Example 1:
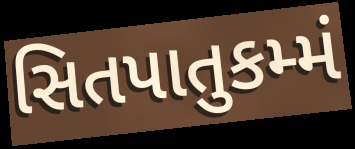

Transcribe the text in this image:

સિતપાતુકમ્મં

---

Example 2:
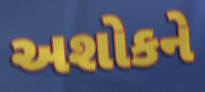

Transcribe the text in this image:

અશોકને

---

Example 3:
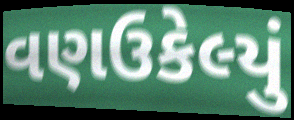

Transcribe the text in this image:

વણઉકેલ્યું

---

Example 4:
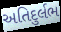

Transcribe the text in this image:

અતિદુર્લભ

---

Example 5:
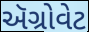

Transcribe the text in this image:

ઍગ્રોવેટ